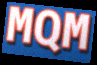
MQM